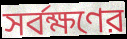
সর্বক্ষণের